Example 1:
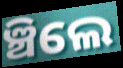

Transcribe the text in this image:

ଞ୍ଚିଲେ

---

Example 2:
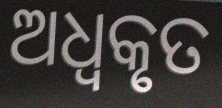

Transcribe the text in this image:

ଅଧ୍ବକୃତ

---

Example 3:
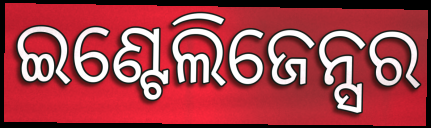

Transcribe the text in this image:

ଇଣ୍ଟେଲିଜେନ୍ସର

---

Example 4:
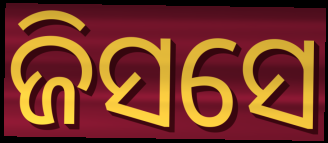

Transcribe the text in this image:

ଜିସସେ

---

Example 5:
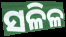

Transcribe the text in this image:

ସଳିଳ